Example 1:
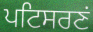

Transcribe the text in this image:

ਪਟਿਸਰਣਂ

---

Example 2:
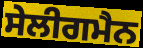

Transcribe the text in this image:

ਸੇਲੀਗਮੈਨ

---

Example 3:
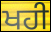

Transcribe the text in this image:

ਖਹੀ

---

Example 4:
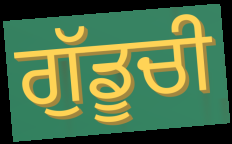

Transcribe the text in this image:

ਗੁੱਡੂਚੀ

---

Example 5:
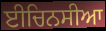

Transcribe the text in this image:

ਈਚਿਨਸੀਆ